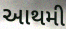
આથમી